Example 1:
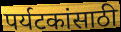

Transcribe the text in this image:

पर्यटकांसाठी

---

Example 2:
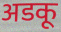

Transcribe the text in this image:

अडकू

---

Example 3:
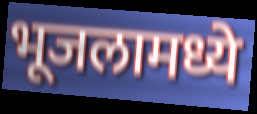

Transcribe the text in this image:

भूजलामध्ये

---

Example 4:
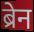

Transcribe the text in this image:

ब्रेन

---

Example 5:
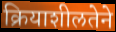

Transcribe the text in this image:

क्रियाशीलतेने